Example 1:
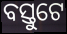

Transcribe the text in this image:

ବସ୍ତୁଟେ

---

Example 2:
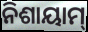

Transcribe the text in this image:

ନିଶାୟାମ୍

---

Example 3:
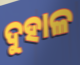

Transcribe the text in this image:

ଦୁହାଳ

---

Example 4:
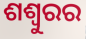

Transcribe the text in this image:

ଶଶ୍ୱୁରର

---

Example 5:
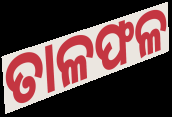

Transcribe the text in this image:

ତାଳଫଳ